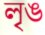
লৃঙ